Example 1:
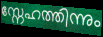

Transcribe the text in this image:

സ്നേഹത്തിന്നും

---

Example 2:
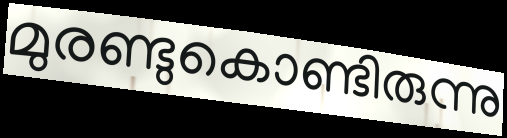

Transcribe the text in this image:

മുരണ്ടുകൊണ്ടിരുന്നു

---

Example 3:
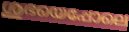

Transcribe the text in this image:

ശുഭയെപ്പോലെ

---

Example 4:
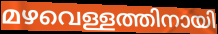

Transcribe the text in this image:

മഴവെള്ളത്തിനായി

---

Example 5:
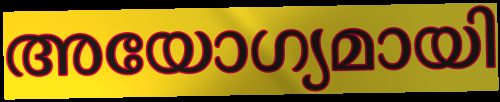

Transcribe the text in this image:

അയോഗ്യമായി